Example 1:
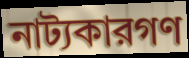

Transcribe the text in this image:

নাট্যকারগণ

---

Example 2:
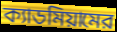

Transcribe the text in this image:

ক্যাডমিয়ামের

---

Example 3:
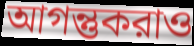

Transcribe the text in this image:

আগন্তুকরাও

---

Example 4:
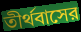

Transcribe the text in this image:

তীর্থবাসের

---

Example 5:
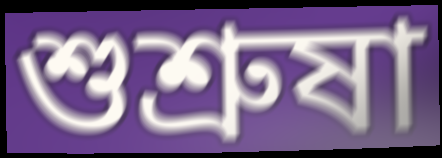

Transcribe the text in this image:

শুশ্রুষা